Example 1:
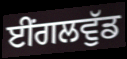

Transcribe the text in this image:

ਈਂਗਲਵੁੱਡ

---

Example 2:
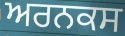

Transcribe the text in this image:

ਅਰਨਕਸ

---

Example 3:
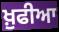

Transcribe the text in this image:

ਖ਼ੁਫੀਆ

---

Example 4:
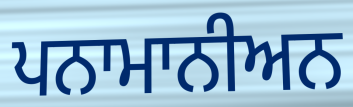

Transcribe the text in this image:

ਪਨਾਮਾਨੀਅਨ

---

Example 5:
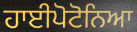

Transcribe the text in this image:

ਹਾਈਪੋਟੋਨਿਆ